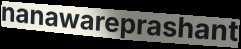
nanawareprashant